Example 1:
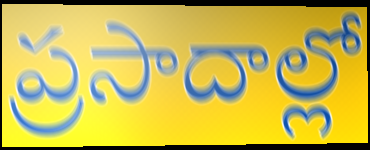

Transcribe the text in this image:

ప్రసాదాల్లో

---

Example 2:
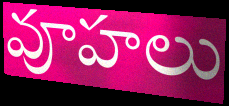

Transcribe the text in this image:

వూహలు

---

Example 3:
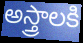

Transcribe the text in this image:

అస్త్రాలకి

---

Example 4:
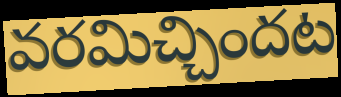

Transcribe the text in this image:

వరమిచ్చిందట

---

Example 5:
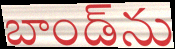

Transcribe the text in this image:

బాండ్‌ను